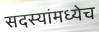
सदस्यांमध्येच